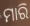
ମାରି